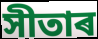
সীতাৰ